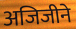
अजिजीने